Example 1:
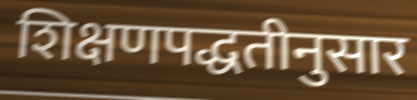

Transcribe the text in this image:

शिक्षणपद्धतीनुसार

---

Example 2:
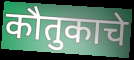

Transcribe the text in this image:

कौतुकाचे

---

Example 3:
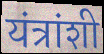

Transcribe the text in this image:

यंत्रांशी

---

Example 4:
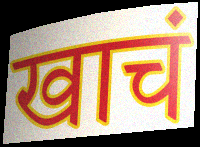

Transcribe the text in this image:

खाचं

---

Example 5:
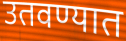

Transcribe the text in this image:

उतवण्यात